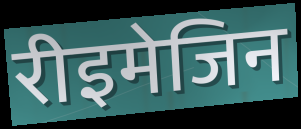
रीइमेजिन